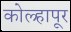
कोल्हापूर